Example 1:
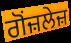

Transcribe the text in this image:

ਗੋਂਜ਼ਲੇਜ਼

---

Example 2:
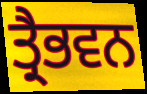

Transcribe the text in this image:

ਤ੍ਰੈਭਵਨ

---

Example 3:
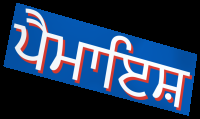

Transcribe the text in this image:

ਪੈਮਾਇਸ਼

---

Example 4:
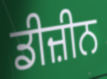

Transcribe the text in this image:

ਡੀਜ਼ੀਨ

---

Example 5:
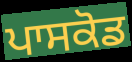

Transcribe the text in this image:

ਪਾਸਕੋਡ